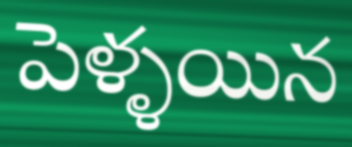
పెళ్ళయిన